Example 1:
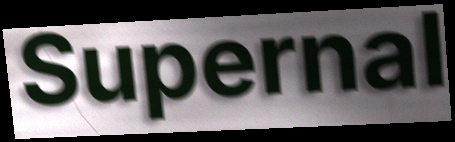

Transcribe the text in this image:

Supernal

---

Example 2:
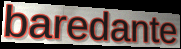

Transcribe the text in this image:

baredante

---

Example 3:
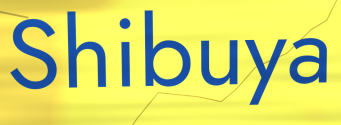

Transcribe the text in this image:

Shibuya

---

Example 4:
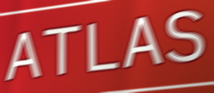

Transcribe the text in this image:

ATLAS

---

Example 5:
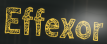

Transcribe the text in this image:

Effexor